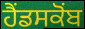
ਹੈਂਡਸਕੋਂਬ